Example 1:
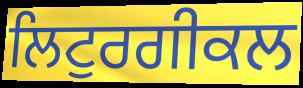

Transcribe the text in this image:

ਲਿਟੁਰਗੀਕਲ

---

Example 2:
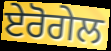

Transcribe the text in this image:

ਏਰੋਗੇਲ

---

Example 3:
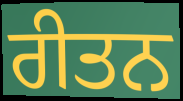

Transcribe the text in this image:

ਰੀਤਨ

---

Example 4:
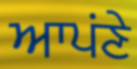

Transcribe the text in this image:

ਆਪਂਣੇ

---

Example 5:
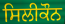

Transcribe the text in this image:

ਸਿਲੀਕੌਨ